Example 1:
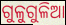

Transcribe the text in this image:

ଗୁଳୁଗୁଳିଆ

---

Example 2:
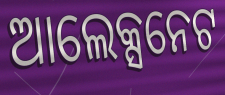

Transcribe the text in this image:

ଆଲେକ୍ସନେଟ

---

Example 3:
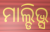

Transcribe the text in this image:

ମାଲ୍ଡିଭ୍ସ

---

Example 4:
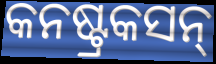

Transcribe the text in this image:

କନଷ୍ଟ୍ରକସନ୍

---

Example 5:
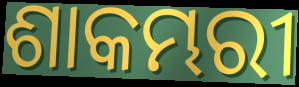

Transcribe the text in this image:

ଶାକମ୍ଭରୀ